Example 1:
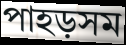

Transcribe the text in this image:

পাহড়সম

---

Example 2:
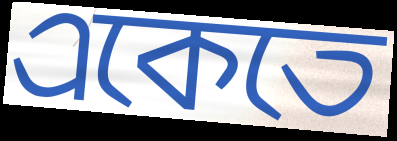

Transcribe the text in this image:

একেতে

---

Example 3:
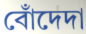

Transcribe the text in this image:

বোঁদেদা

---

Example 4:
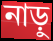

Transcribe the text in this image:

নাড়ু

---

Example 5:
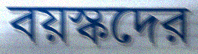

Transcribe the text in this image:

বয়স্কদের